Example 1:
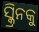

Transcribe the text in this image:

ସ୍କ୍ରିନକୁ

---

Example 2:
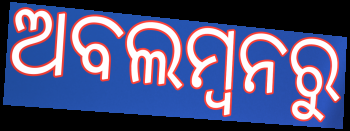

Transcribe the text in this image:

ଅବଲମ୍ବନରୁ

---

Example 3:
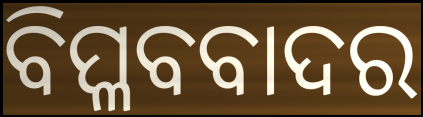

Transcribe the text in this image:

ବିପ୍ଳବବାଦର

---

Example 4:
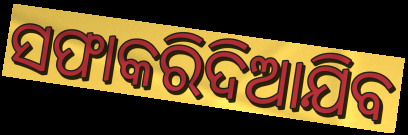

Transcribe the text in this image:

ସଫାକରିଦିଆଯିବ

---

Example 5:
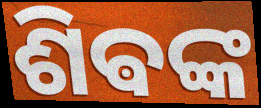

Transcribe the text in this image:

ଶିଵଙ୍କ